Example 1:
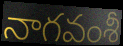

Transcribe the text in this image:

నాగవంశీ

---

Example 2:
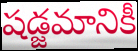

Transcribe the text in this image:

షడ్జమానికీ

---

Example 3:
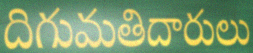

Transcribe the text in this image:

దిగుమతిదారులు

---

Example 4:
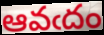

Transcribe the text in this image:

ఆవఁదం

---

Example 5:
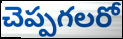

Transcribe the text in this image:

చెప్పగలరో